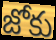
జోకు